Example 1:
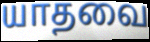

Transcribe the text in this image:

யாதவை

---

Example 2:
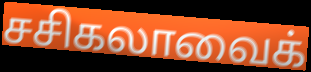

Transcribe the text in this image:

சசிகலாவைக்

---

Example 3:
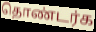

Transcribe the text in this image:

தொண்டர்க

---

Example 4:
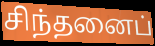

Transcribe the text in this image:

சிந்தனைப்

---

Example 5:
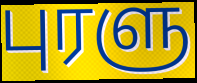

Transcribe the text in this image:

புரளு